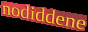
nodiddene